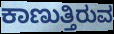
ಕಾಣುತ್ತಿರುವ